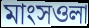
মাংসওলা